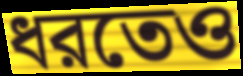
ধরতেও